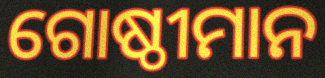
ଗୋଷ୍ଠୀମାନ